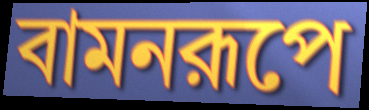
বামনরূপে